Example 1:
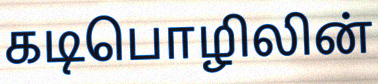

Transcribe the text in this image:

கடிபொழிலின்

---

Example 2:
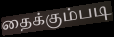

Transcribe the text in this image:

தைக்கும்படி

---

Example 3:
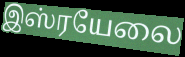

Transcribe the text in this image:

இஸ்ரயேலை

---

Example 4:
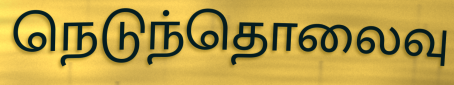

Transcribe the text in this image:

நெடுந்தொலைவு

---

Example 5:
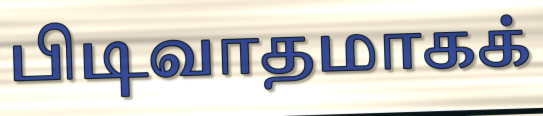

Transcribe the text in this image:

பிடிவாதமாகக்